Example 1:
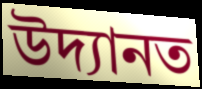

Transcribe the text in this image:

উদ্যানত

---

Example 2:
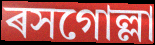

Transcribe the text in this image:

ৰসগোল্লা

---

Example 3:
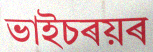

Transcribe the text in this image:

ভাইচৰয়ৰ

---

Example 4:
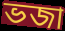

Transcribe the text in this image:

ভজা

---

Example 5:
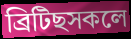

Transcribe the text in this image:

ব্ৰিটিছসকলে